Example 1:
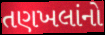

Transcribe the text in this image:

તણખલાંનો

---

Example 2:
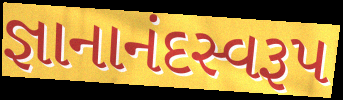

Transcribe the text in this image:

જ્ઞાનાનંદસ્વરૂપ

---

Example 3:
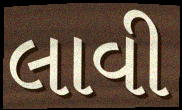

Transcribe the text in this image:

લાવી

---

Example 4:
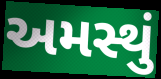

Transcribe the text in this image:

અમસ્થું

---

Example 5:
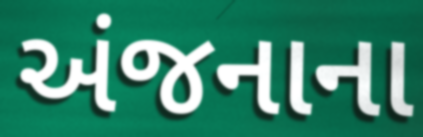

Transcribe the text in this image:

અંજનાના